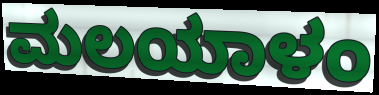
ಮಲಯಾಳಂ